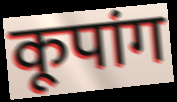
कूपांग